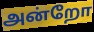
அன்றோ